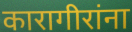
कारागीरांना